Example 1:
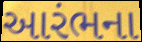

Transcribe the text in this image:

આરંભના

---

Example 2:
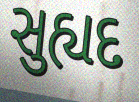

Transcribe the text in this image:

સુહ્યદ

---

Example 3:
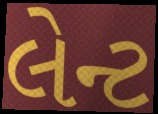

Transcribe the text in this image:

લેન્ટ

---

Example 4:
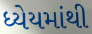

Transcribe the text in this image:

ધ્યેયમાંથી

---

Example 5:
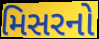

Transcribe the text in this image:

મિસરનો